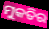
ମୁକତିର